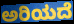
ಅರಿಯದೆ